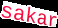
sakar